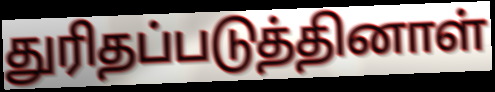
துரிதப்படுத்தினாள்